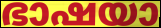
ഭാഷയാ